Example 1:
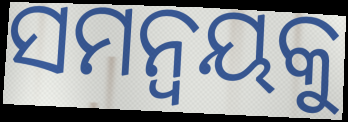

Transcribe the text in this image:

ସମନ୍ବୟକୁ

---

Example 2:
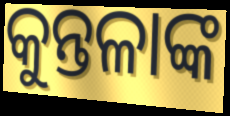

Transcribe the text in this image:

କୁନ୍ତଳାଙ୍କ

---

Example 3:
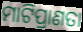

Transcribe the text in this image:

ମାଟିପ୍ରାଣତା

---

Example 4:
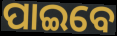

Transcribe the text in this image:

ପାଇବେ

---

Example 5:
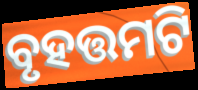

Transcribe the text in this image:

ବୃହତ୍ତମଟି